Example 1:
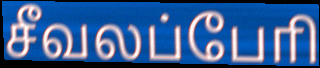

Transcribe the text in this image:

சீவலப்பேரி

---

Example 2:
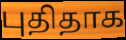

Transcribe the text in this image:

புதிதாக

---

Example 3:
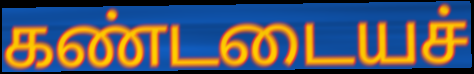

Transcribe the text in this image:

கண்டடையச்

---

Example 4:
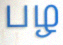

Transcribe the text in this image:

பழ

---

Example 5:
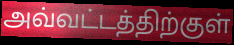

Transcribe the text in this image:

அவ்வட்டத்திற்குள்